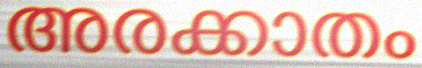
അരക്കാതം